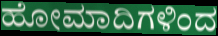
ಹೋಮಾದಿಗಳಿಂದ